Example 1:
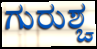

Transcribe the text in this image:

ಗುರುಶ್ಚ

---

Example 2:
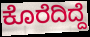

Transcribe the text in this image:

ಕೊರೆದಿದ್ದೆ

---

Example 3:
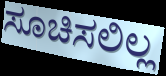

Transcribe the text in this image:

ಸೂಚಿಸಲಿಲ್ಲ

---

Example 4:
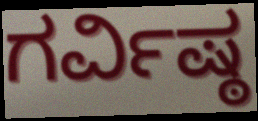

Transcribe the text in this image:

ಗರ್ವಿಷ್ಠ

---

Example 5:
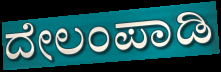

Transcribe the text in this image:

ದೇಲಂಪಾಡಿ